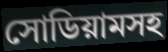
সোডিয়ামসহ